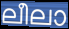
ലീലാ